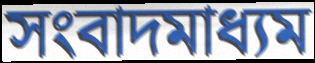
সংবাদমাধ্যম